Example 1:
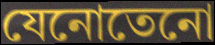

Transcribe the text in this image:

যেনোতেনো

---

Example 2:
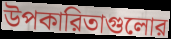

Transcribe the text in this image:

উপকারিতাগুলোর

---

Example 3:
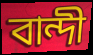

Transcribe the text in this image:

বান্দী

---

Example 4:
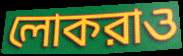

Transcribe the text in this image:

লোকরাও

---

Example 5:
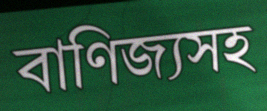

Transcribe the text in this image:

বাণিজ্যসহ